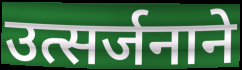
उत्सर्जनाने